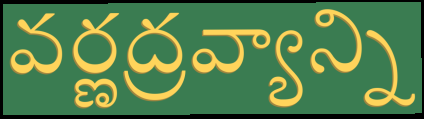
వర్ణద్రవ్యాన్ని